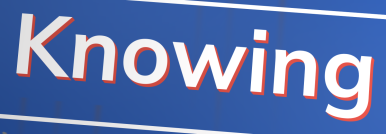
Knowing